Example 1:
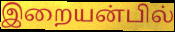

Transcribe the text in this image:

இறையன்பில்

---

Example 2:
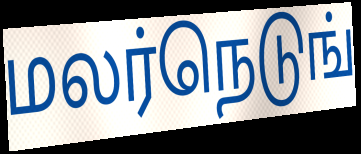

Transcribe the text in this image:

மலர்நெடுங்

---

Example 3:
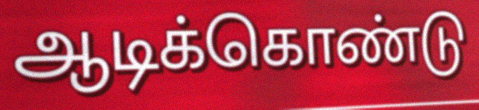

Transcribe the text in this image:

ஆடிக்கொண்டு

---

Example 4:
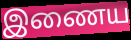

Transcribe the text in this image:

இணைய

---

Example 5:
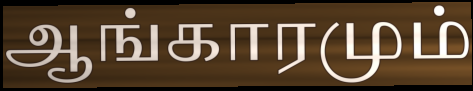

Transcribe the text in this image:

ஆங்காரமும்